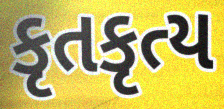
કૃતકૃત્ય